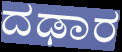
ದಢಾರ